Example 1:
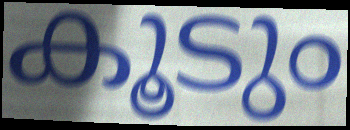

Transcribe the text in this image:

കൂടും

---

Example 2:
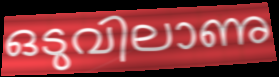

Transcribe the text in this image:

ഒടുവിലാണു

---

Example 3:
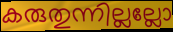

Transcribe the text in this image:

കരുതുന്നില്ലല്ലോ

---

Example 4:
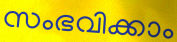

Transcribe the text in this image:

സംഭവിക്കാം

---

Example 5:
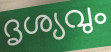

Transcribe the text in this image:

ദൃശ്യവും